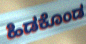
ಹಿಡಕೊಂಡ